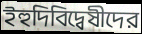
ইহুদিবিদ্বেষীদের